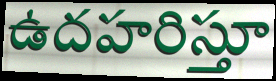
ఉదహరిస్తూ